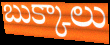
బుక్కాలు